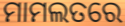
ମାମଲତରେ